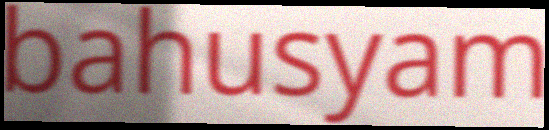
bahusyam